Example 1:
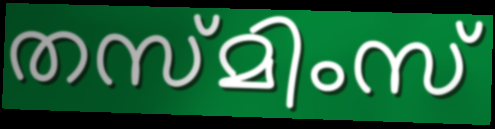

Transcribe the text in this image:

തസ്മിംസ്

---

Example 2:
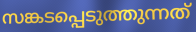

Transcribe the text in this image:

സങ്കടപ്പെടുത്തുന്നത്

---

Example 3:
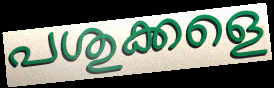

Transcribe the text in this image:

പശുക്കളെ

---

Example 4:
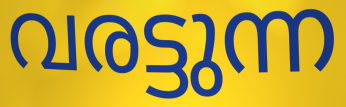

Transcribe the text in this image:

വരട്ടുന്ന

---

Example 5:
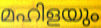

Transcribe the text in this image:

മഹിളയും